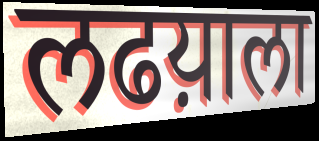
लढय़ाला